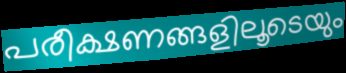
പരീക്ഷണങ്ങളിലൂടെയും